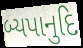
બ્યપાનુદિ